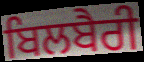
ਬਿਲਬੈਰੀ